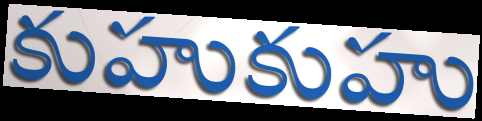
కుహుకుహు